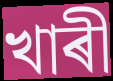
খাৰী